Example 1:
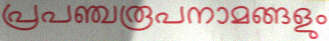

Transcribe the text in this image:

പ്രപഞ്ചരൂപനാമങ്ങളും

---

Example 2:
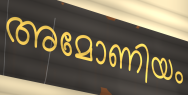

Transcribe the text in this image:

അമോണിയം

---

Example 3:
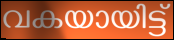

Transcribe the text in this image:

വകയായിട്ട്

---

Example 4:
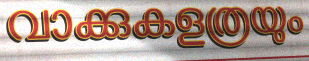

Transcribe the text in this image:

വാക്കുകളത്രയും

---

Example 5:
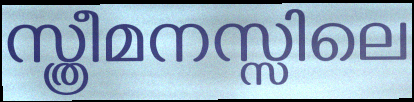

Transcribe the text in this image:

സ്ത്രീമനസ്സിലെ